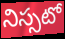
నిస్సటో